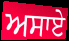
ਅਸਾਏ